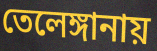
তেলেঙ্গানায়